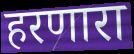
हरणारा